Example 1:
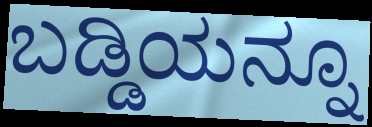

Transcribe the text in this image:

ಬಡ್ಡಿಯನ್ನೂ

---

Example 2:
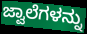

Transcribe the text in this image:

ಜ್ವಾಲೆಗಳನ್ನು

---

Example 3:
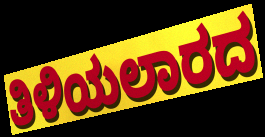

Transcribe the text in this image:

ತಿಳಿಯಲಾರದ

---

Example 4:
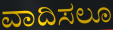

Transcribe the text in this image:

ವಾದಿಸಲೂ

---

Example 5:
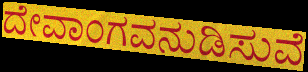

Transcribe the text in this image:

ದೇವಾಂಗವನುಡಿಸುವೆ